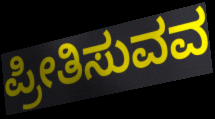
ಪ್ರೀತಿಸುವವ